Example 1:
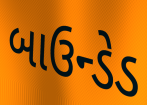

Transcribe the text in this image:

બાઉન્ડેડ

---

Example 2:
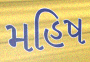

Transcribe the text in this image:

મહિષ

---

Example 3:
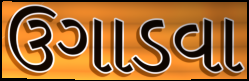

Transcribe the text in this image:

ઉગાડવા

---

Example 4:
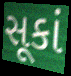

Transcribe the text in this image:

સૂકાં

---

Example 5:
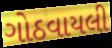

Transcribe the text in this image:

ગોઠવાયલી